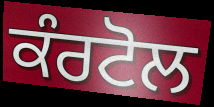
ਕੰਰਟੋਲ